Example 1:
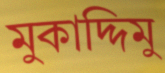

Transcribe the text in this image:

মুকাদ্দিমু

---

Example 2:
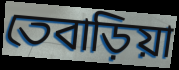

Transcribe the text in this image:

তেবাড়িয়া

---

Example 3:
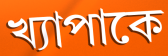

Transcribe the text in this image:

খ্যাপাকে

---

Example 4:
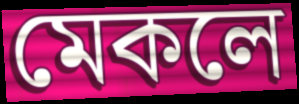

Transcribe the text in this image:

মেকলে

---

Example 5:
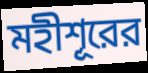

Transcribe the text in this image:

মহীশূরের